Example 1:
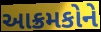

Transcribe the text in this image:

આક્રમકોને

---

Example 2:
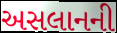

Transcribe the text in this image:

અસલાનની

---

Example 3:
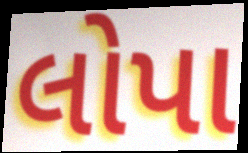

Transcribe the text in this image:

લોપા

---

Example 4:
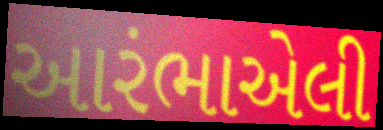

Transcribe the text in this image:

આરંભાએલી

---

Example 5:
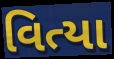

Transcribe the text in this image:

વિત્યા